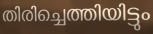
തിരിച്ചെത്തിയിട്ടും